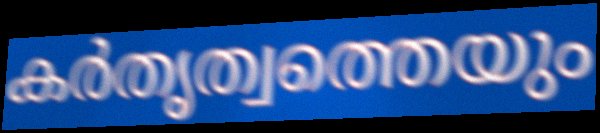
കർതൃത്വത്തെയും